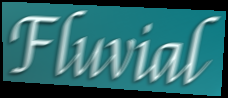
Fluvial